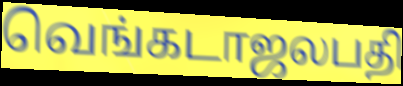
வெங்கடாஜலபதி